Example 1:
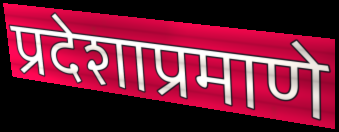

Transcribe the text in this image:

प्रदेशाप्रमाणे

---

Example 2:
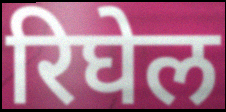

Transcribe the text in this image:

रिघेल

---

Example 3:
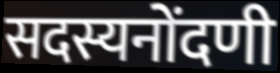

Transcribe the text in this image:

सदस्यनोंदणी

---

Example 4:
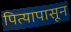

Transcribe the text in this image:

पित्यापासून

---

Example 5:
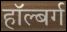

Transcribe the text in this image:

हॉल्बर्ग